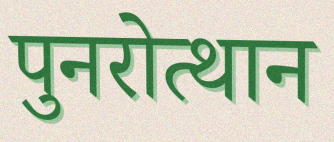
पुनरोत्थान